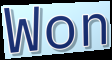
Won